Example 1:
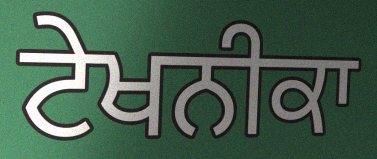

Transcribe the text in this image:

ਟੇਖਨੀਕਾ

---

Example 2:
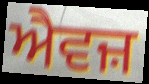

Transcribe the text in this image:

ਐਵਜ਼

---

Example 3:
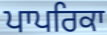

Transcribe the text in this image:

ਪਾਪਰਿਕਾ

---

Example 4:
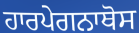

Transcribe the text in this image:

ਹਾਰਪੇਗਨਾਥੋਸ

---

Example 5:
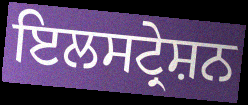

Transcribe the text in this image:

ਇਲਸਟ੍ਰੇਸ਼ਨ